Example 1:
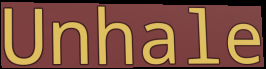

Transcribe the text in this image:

Unhale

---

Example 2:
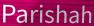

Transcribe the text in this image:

Parishah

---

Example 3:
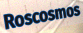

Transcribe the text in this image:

Roscosmos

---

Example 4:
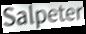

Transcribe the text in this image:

Salpeter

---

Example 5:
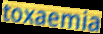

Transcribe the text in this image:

toxaemia